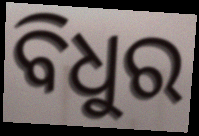
ବିଧୁର